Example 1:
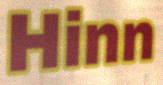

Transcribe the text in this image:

Hinn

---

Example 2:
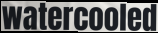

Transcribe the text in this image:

watercooled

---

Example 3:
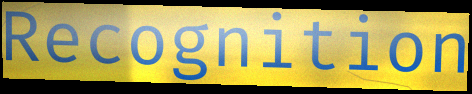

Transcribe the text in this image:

Recognition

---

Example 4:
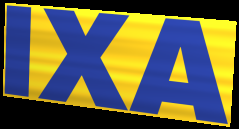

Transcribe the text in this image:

IXA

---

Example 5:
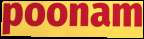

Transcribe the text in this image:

poonam